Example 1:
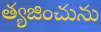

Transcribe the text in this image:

త్యజించును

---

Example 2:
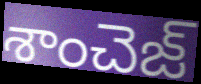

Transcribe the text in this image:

శాంచెజ్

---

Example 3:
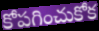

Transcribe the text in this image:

కోపగించుకోక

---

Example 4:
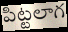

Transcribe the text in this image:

పిట్టలాగ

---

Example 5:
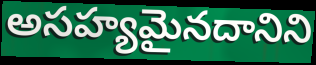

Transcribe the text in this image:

అసహ్యమైనదానిని